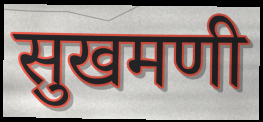
सुखमणी